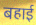
बहाई